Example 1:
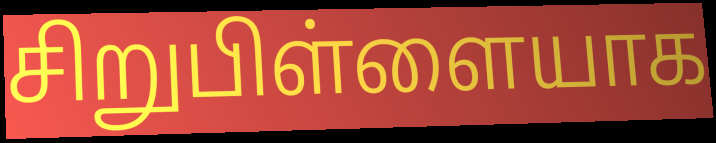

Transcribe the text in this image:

சிறுபிள்ளையாக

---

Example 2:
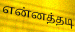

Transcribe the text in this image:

என்னத்தடி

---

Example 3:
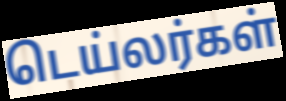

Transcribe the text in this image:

டெய்லர்கள்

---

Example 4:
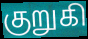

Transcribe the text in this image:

குறுகி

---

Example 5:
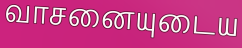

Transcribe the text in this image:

வாசனையுடைய